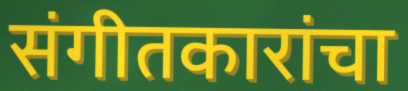
संगीतकारांचा